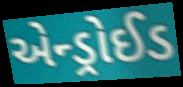
એન્ડ્રોઈડ